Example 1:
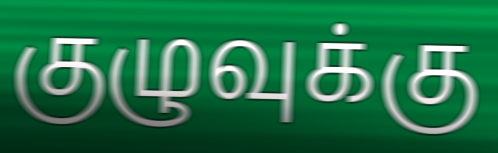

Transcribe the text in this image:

குழுவுக்கு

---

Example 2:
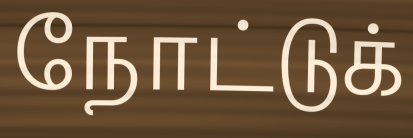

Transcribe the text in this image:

நோட்டுக்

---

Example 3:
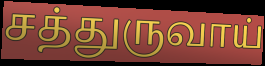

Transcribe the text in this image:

சத்துருவாய்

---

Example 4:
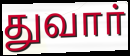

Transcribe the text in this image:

துவார்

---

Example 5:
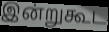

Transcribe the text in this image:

இன்றுகூட